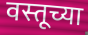
वस्तूच्या